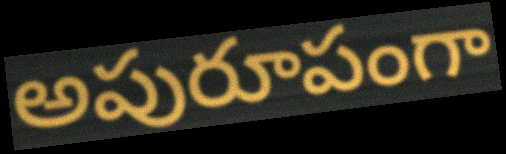
అపురూపంగా